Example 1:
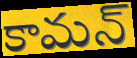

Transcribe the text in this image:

కామన్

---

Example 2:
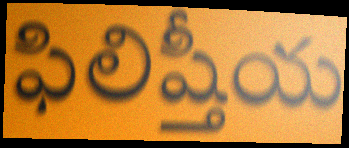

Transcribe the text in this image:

ఫిలిష్తీయ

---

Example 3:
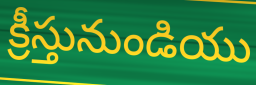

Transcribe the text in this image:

క్రీస్తునుండియు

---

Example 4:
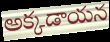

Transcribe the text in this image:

అక్కడాయన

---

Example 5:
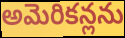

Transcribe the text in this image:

అమెరికన్లను